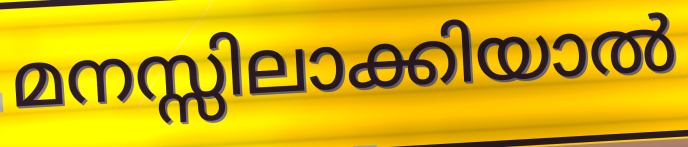
മനസ്സിലാക്കിയാൽ